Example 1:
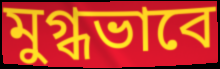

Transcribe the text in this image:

মুগ্ধভাবে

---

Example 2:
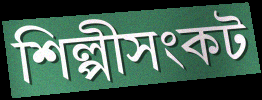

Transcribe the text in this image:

শিল্পীসংকট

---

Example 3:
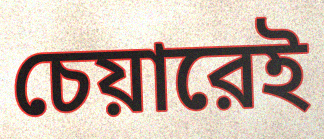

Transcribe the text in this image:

চেয়ারেই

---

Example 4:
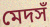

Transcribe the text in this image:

মেদসঁ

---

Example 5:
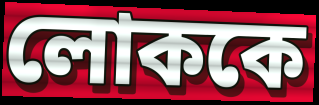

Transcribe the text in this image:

লোককে